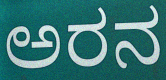
ಅರನ